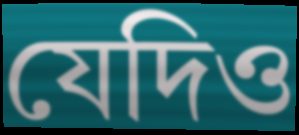
যেদিও